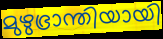
മുഴുഭ്രാന്തിയായി